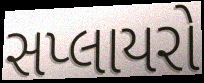
સપ્લાયરો